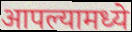
आपल्यामध्ये